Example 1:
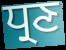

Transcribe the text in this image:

ਧ੍ਰਣ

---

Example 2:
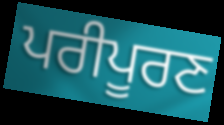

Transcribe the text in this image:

ਪਰੀਪੂਰਣ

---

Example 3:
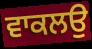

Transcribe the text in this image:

ਵਾਕਲਉ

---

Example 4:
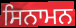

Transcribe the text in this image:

ਸਿਨਾਮਨ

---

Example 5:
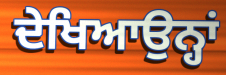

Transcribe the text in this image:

ਦੇਖਿਆਉਨ੍ਹਾਂ